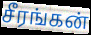
சீரங்கன்